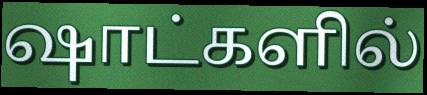
ஷாட்களில்